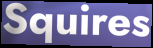
Squires